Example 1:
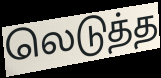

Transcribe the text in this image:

லெடுத்த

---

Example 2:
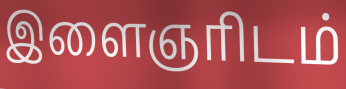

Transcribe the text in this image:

இளைஞரிடம்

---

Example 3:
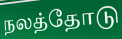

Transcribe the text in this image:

நலத்தோடு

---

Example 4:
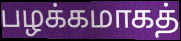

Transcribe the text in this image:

பழக்கமாகத்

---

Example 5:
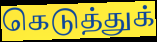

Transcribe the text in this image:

கெடுத்துக்